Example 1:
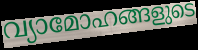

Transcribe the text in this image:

വ്യാമോഹങ്ങളുടെ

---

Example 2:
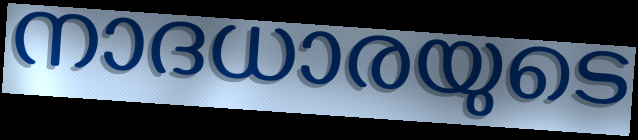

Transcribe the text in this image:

നാദധാരയുടെ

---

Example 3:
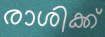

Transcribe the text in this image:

രാശിക്ക്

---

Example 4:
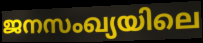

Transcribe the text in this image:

ജനസംഖ്യയിലെ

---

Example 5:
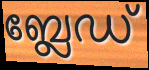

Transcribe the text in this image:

ബ്ലേഡ്